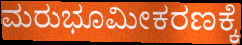
ಮರುಭೂಮೀಕರಣಕ್ಕೆ